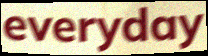
everyday